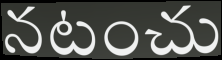
నటంచు